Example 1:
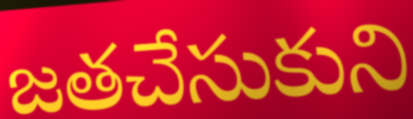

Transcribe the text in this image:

జతచేసుకుని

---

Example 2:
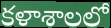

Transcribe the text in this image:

కళాశాలలో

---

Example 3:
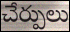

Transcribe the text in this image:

చేర్పులు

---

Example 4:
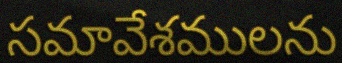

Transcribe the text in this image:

సమావేశములను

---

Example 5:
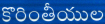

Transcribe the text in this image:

కొరింతీయుల